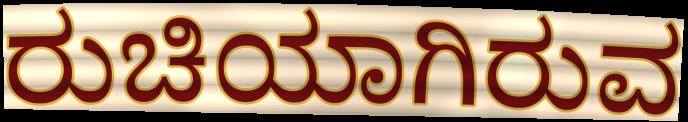
ರುಚಿಯಾಗಿರುವ